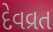
દેવવ્રત